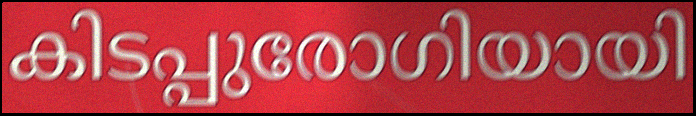
കിടപ്പുരോഗിയായി